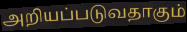
அறியப்படுவதாகும்